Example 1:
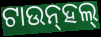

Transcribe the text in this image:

ଟାଉନ୍‌ହଲ୍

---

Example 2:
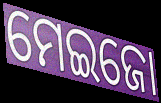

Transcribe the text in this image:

ମେଇଜୋ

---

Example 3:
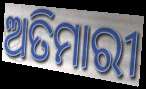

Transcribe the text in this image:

ଅତିମାରୀ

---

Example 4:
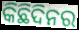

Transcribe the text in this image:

କିଛିଦିନର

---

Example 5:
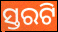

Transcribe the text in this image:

ସ୍ତରଟି